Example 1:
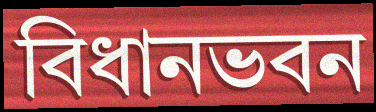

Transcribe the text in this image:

বিধানভবন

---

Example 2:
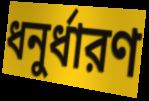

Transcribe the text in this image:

ধনুর্ধারণ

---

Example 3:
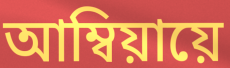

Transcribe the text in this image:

আম্বিয়ায়ে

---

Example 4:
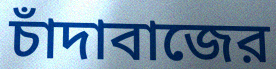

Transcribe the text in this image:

চাঁদাবাজের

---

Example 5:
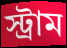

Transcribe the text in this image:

স্ট্রাম